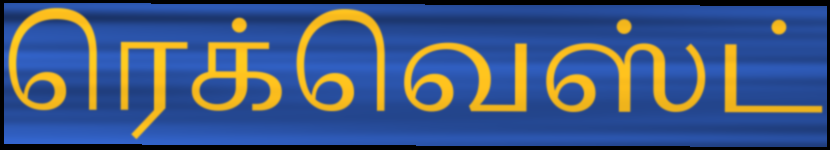
ரெக்வெஸ்ட்